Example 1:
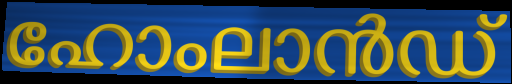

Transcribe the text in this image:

ഹോംലാൻഡ്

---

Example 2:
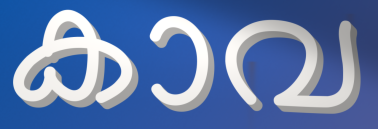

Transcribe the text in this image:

കാവ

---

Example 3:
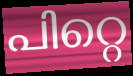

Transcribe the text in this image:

പിറ്റെ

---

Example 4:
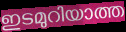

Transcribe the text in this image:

ഇടമുറിയാത്ത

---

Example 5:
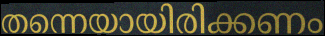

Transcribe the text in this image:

തന്നെയായിരിക്കണം